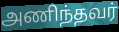
அணிந்தவர்